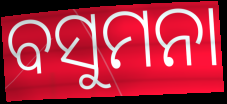
ବସୁମନା